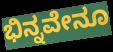
ಭಿನ್ನವೇನೂ